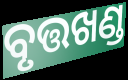
ବୃତ୍ତଖଣ୍ଡ